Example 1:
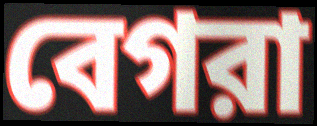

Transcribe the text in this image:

বেগরা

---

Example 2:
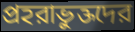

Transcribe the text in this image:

প্রহরাভুক্তদের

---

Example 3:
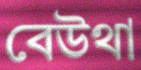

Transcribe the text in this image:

বেউথা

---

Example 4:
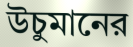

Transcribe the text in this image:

উচুমানের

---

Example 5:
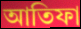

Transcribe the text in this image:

আতিফা